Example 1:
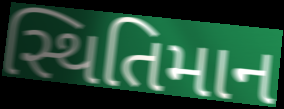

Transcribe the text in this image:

સ્થિતિમાન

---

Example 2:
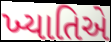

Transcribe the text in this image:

ખ્યાતિએ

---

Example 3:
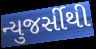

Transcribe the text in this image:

ન્યુજર્સીથી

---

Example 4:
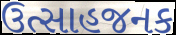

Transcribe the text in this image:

ઉત્સાહજનક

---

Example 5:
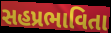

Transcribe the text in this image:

સહપ્રભાવિતા